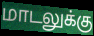
மாடலுக்கு